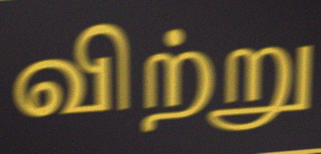
விற்று